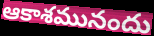
ఆకాశమునందు